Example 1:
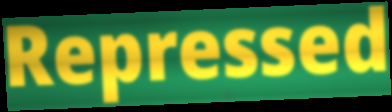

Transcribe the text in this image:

Repressed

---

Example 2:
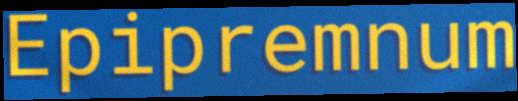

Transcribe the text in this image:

Epipremnum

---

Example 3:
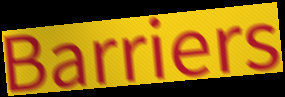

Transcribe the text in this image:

Barriers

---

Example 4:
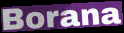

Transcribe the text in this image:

Borana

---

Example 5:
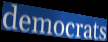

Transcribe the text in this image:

democrats